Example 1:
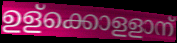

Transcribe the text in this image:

ഉള്ക്കൊളളാന്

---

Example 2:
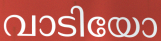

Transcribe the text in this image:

വാടിയോ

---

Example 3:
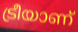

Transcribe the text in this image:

ട്രീയാണ്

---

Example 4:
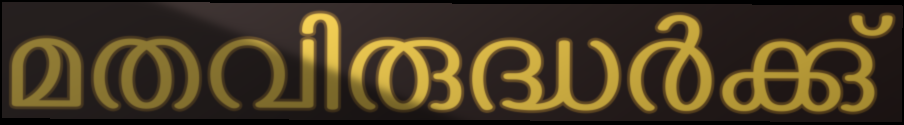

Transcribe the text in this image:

മതവിരുദ്ധർക്കു്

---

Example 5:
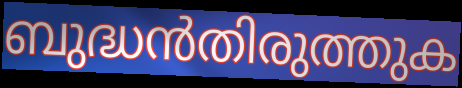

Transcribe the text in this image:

ബുദ്ധൻതിരുത്തുക